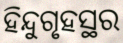
ହିନ୍ଦୁଗୃହସ୍ଥର